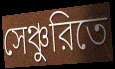
সেঞ্চুরিতে